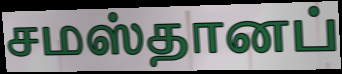
சமஸ்தானப்